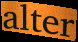
alter